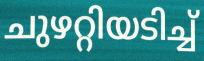
ചുഴറ്റിയടിച്ച്